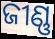
ଜୀଣ୍ଣ